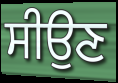
ਸੀਉਣ